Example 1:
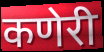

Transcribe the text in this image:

कणेरी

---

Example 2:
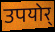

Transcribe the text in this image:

उपयोर्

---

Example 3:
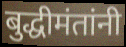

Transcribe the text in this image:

बुद्धीमंतांनी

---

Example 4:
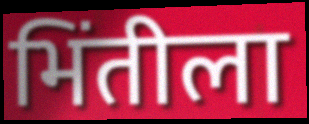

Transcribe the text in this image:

भिंतीला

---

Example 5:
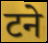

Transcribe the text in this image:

टने